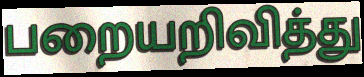
பறையறிவித்து